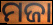
ମଜା